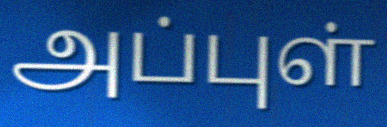
அப்புள்